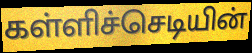
கள்ளிச்செடியின்